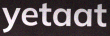
yetaat